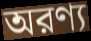
অরণ্য